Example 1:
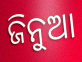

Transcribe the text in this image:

ଜିନୁଆ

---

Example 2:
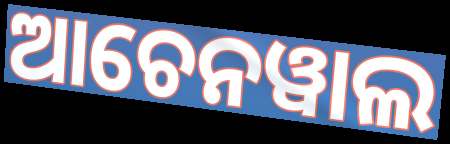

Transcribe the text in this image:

ଆଚେନୱାଲ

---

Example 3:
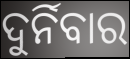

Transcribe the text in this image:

ଦୁର୍ନିବାର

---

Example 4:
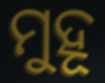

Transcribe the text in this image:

ମୁହୂ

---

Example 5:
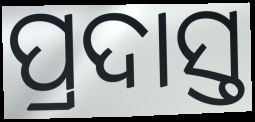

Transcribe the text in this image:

ପ୍ରଦାସ୍ତ